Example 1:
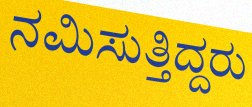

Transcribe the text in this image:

ನಮಿಸುತ್ತಿದ್ದರು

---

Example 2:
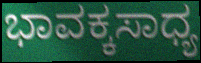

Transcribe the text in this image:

ಭಾವಕ್ಕಸಾಧ್ಯ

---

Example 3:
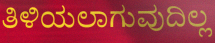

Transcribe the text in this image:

ತಿಳಿಯಲಾಗುವುದಿಲ್ಲ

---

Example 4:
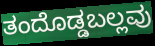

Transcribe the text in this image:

ತಂದೊಡ್ಡಬಲ್ಲವು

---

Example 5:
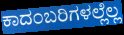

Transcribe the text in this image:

ಕಾದಂಬರಿಗಳಲ್ಲೆಲ್ಲ